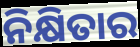
ନିକ୍ଷିତାର